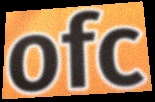
ofc